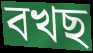
বখছ